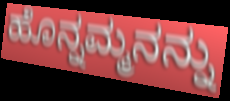
ಹೊನ್ನಮ್ಮನನ್ನು